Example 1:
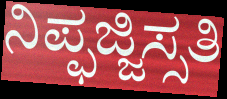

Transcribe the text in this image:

ನಿಪ್ಫಜ್ಜಿಸ್ಸತಿ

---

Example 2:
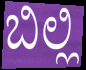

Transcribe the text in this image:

ಬಿಲ್ಲಿ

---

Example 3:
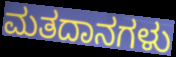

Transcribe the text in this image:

ಮತದಾನಗಳು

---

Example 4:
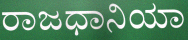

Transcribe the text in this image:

ರಾಜಧಾನಿಯಾ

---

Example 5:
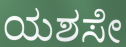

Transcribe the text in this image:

ಯಶಸೇ